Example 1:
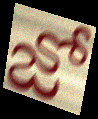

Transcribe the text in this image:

జో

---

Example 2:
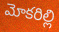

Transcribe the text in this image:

మోకరిల్లి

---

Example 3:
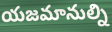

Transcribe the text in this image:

యజమానుల్ని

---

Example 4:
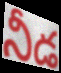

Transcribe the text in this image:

నీడ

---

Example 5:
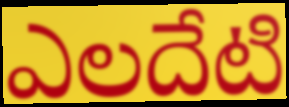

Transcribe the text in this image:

ఎలదేటి